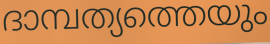
ദാമ്പത്യത്തെയും